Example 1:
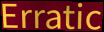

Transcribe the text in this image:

Erratic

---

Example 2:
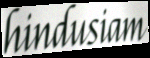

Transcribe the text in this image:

hindusiam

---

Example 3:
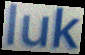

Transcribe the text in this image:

luk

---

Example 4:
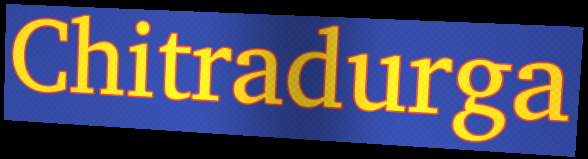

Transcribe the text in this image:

Chitradurga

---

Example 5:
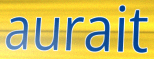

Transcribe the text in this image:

aurait